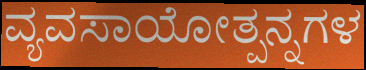
ವ್ಯವಸಾಯೋತ್ಪನ್ನಗಳ